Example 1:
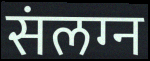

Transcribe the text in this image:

संलग्‍न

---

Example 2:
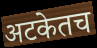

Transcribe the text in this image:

अटकेतच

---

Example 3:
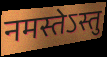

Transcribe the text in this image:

नमस्तेऽस्तु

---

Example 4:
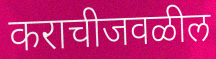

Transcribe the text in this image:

कराचीजवळील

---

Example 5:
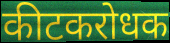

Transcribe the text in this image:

कीटकरोधक